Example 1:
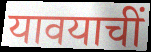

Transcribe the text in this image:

यावयाचीं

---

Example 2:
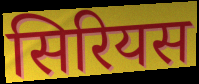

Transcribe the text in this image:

सिरियस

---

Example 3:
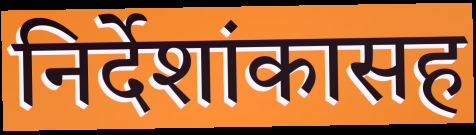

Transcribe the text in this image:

निर्देशांकासह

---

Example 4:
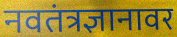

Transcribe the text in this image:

नवतंत्रज्ञानावर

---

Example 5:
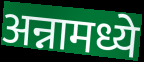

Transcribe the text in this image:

अन्नामध्ये